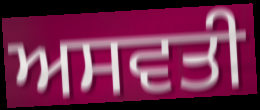
ਅਸਵਤੀ